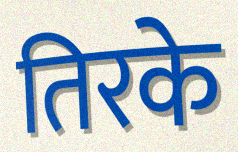
तिरके